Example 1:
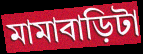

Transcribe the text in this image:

মামাবাড়িটা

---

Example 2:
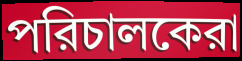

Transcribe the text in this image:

পরিচালকেরা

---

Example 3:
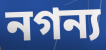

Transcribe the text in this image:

নগন্য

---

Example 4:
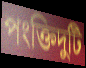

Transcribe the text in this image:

পংক্তিদুটি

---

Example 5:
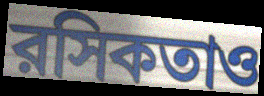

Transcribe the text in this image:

রসিকতাও